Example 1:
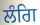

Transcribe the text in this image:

ਲੰਗਿ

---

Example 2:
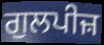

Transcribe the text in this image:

ਗੁਲਪੀਜ਼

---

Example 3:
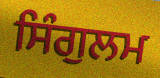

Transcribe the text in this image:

ਸਿੰਗੁਲਮ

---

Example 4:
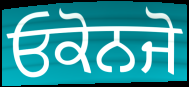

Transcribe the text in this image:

ਓਕੋਨਜੋ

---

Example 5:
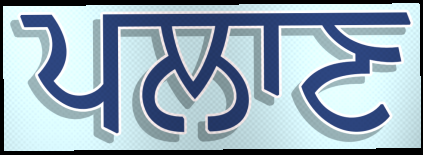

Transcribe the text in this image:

ਪਲਾਣ